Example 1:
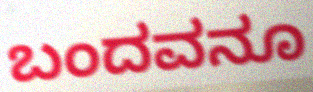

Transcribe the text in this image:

ಬಂದವನೂ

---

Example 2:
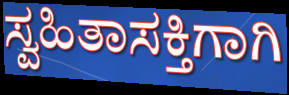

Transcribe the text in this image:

ಸ್ವಹಿತಾಸಕ್ತಿಗಾಗಿ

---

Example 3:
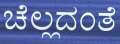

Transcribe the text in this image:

ಚೆಲ್ಲದಂತೆ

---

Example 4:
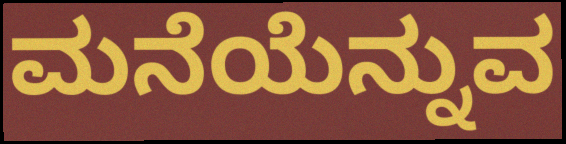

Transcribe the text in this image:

ಮನೆಯೆನ್ನುವ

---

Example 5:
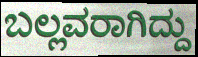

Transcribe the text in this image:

ಬಲ್ಲವರಾಗಿದ್ದು